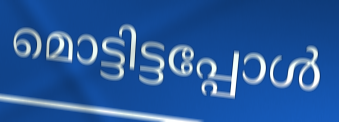
മൊട്ടിട്ടപ്പോൾ